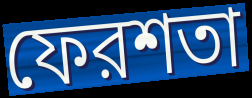
ফেরশতা